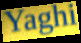
Yaghi